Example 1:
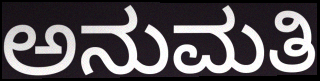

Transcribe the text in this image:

ಅನುಮತಿ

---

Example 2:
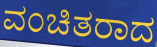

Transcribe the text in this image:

ವಂಚಿತರಾದ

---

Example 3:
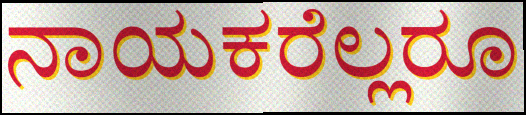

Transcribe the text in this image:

ನಾಯಕರೆಲ್ಲರೂ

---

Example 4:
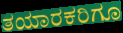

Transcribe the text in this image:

ತಯಾರಕರಿಗೂ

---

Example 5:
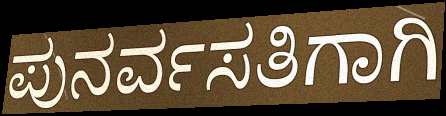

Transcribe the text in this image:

ಪುನರ್ವಸತಿಗಾಗಿ